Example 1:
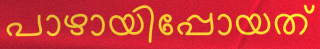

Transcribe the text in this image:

പാഴായിപ്പോയത്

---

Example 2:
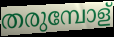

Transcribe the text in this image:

തരുമ്പോള്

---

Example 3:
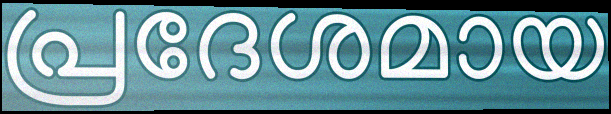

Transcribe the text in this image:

പ്രദേശമായ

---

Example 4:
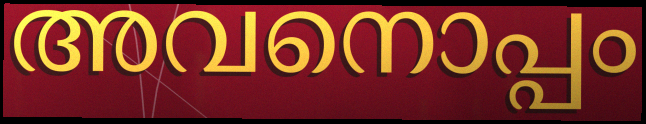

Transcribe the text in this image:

അവനൊപ്പം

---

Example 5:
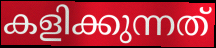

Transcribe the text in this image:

കളിക്കുന്നത്